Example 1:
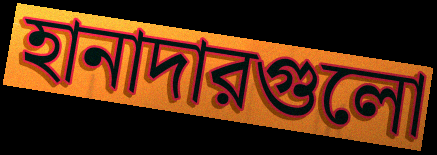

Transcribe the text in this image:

হানাদারগুলো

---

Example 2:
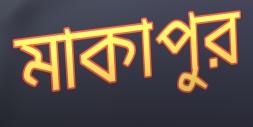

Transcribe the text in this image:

মাকাপুর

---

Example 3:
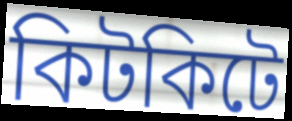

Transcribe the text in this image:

কিটকিটে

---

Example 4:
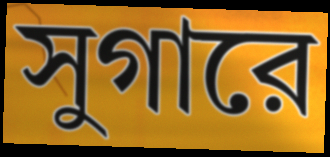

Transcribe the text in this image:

সুগারে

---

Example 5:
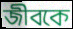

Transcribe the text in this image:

জীবকে